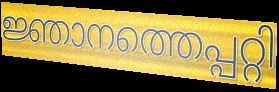
ജ്ഞാനത്തെപ്പറ്റി